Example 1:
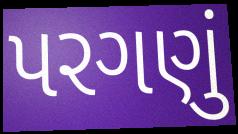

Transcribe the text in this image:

પરગણું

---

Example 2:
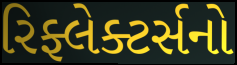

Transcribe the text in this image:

રિફ્લેક્ટર્સનો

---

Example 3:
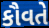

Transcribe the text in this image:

કૌવતે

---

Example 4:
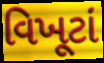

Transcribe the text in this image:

વિખૂટાં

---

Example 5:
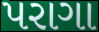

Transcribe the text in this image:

પરાગા